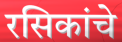
रसिकांचे